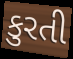
કુરતી